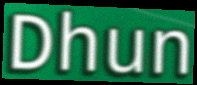
Dhun